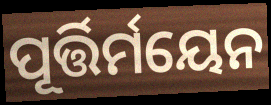
ପୂର୍ତ୍ତିର୍ମୟେନ